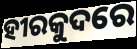
ହୀରକୁଦରେ